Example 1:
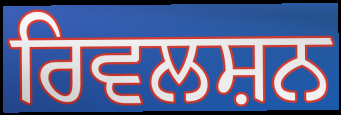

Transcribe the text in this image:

ਰਿਵਲਸ਼ਨ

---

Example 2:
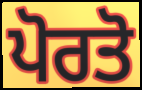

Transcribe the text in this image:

ਪੋਰਤੋ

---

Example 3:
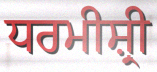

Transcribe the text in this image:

ਧਰਮੀਸ਼੍ਰੀ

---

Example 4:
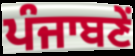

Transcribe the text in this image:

ਪੰਜਾਬਣੇਂ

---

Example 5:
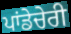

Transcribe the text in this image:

ਪਾਂਡੇਚੇਰੀ